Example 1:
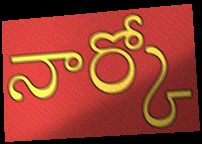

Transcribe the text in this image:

నార్కో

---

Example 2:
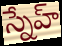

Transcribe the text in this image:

స్నేహ్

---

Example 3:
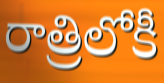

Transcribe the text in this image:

రాత్రిలోకీ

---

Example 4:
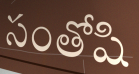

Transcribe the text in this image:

సంతోషి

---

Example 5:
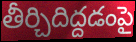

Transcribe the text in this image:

తీర్చిదిద్దడంపై